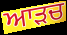
ਆੜਚ